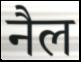
नैल